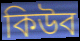
কিউব